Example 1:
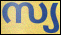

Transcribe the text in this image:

സ്യ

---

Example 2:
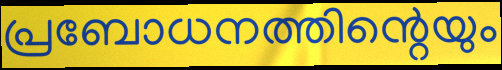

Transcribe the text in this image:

പ്രബോധനത്തിന്റെയും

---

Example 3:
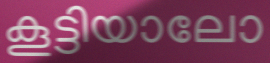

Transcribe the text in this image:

കൂട്ടിയാലോ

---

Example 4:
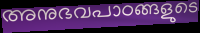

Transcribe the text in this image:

അനുഭവപാഠങ്ങളുടെ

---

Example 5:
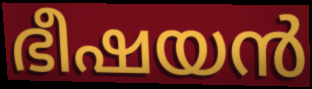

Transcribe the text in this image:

ഭീഷയൻ